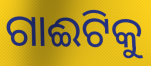
ଗାଈଟିକୁ